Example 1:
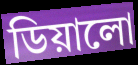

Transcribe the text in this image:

ডিয়ালো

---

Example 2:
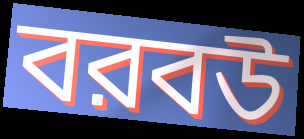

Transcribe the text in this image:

বরবউ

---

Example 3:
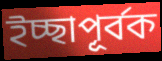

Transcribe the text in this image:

ইচ্ছাপূর্বক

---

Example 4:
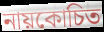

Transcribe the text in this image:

নায়কোচিত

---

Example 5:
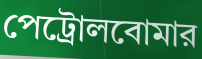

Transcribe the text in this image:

পেট্রোলবোমার